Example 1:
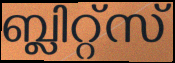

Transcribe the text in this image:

ബ്ലിറ്റ്സ്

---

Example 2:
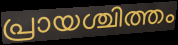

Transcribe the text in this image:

പ്രായശ്ചിത്തം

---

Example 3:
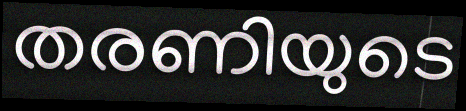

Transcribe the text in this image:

തരണിയുടെ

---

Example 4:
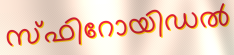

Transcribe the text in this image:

സ്ഫിറോയിഡൽ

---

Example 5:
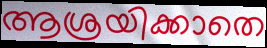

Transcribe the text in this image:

ആശ്രയിക്കാതെ